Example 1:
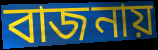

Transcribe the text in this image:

বাজনায়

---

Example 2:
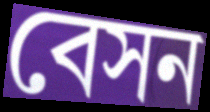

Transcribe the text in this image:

বেসন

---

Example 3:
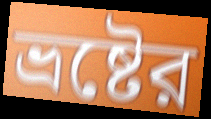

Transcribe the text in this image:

ভ্রষ্টের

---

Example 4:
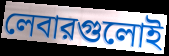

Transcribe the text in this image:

লেবারগুলোই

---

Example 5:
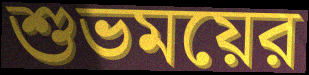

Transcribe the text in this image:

শুভময়ের